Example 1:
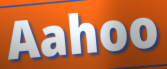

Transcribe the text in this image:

Aahoo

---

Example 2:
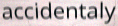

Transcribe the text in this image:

accidentaly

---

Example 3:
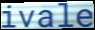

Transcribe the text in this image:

ivale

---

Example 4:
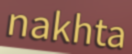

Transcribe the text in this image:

nakhta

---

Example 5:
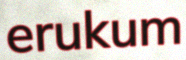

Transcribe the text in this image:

erukum